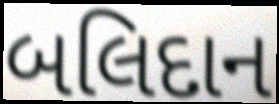
બલિદાન